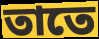
তাতে